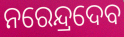
ନରେନ୍ଦ୍ରଦେବ